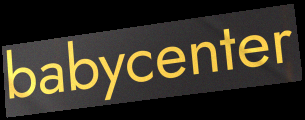
babycenter